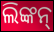
ଲିଙ୍କନ୍